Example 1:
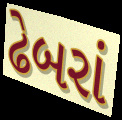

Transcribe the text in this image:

ઢેબરાં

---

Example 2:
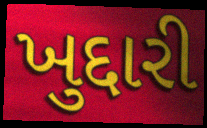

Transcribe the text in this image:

ખુદ્દારી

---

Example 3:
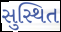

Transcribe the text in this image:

સુસ્થિત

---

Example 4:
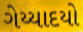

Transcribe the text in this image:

ગેય્યાદયો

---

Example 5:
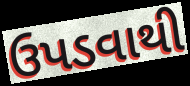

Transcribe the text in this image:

ઉપડવાથી